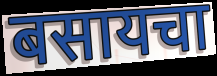
बसायचा